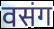
वसंग